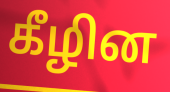
கீழின